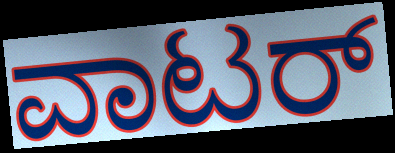
ವಾಟರ್